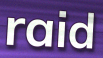
raid